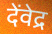
देंवेद्र